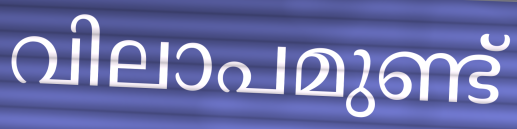
വിലാപമുണ്ട്